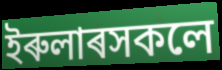
ইৰুলাৰসকলে